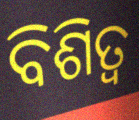
ବିଶିତ୍ଵ